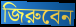
জিরুবেন